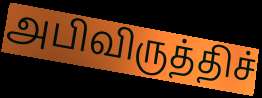
அபிவிருத்திச்